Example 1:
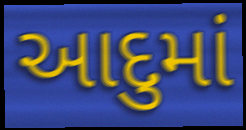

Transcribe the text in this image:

આદુમાં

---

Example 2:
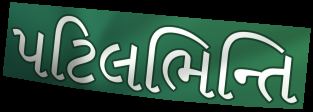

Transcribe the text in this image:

પટિલભિન્તિ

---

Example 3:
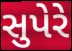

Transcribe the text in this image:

સુપેરે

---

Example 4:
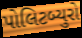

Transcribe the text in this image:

પોલિટબ્યુરો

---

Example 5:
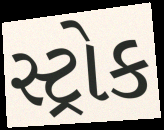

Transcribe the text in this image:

સ્ટ્રોક